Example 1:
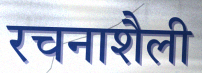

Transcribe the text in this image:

रचनाशैली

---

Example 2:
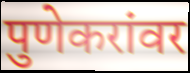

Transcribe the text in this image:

पुणेकरांवर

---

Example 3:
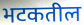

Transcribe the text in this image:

भटकतील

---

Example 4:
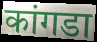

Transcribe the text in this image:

कांगडा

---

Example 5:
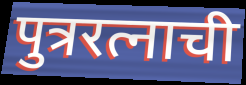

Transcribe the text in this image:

पुत्ररत्नाची